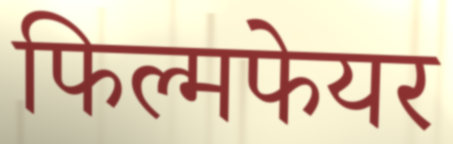
फिल्मफेयर